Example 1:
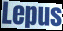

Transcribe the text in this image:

Lepus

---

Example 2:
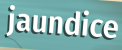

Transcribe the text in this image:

jaundice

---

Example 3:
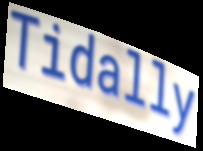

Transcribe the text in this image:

Tidally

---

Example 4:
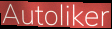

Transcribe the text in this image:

Autoliker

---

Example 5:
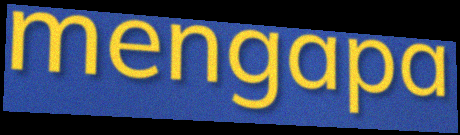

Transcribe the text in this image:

mengapa